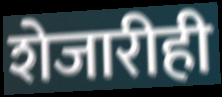
शेजारीही